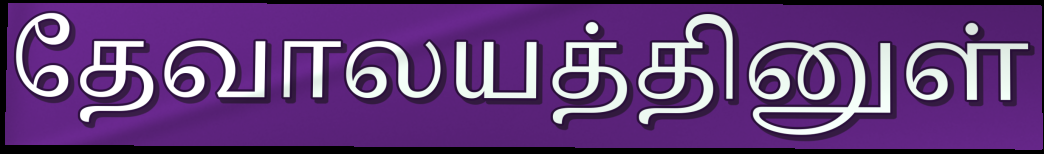
தேவாலயத்தினுள்